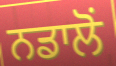
ਨਡਾਲੋਂ